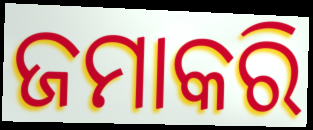
ଜମାକରି